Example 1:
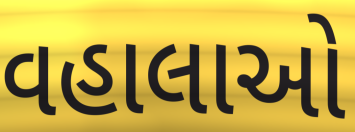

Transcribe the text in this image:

વહાલાઓ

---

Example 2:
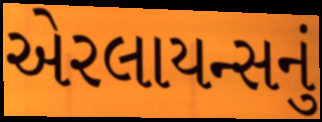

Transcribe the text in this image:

એરલાયન્સનું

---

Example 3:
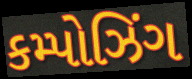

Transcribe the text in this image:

કમ્પોઝિંગ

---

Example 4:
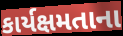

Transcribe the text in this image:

કાર્યક્ષમતાના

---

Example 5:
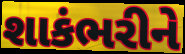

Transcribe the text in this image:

શાકંભરીને